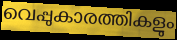
വെപ്പുകാരത്തികളും